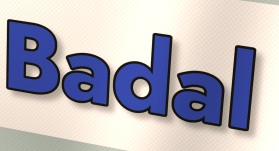
Badal